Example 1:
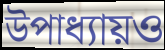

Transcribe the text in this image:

উপাধ্যায়ও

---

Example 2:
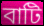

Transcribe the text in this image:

বাটি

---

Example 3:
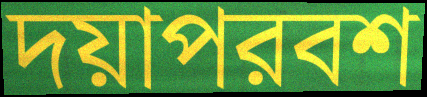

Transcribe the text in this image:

দয়াপরবশ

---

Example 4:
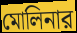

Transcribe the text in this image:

মোলিনার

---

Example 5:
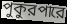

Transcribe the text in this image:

পুকুরপারে